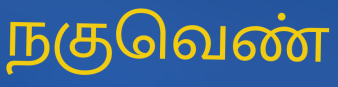
நகுவெண்